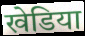
खेडिया